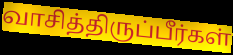
வாசித்திருப்பீர்கள்